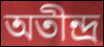
অতীন্দ্র